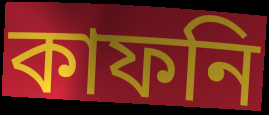
কাফনি